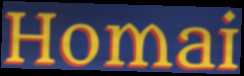
Homai